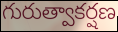
గురుత్వాకర్షణ